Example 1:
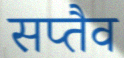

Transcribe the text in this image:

सप्तैव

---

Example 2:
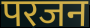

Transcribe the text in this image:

परजन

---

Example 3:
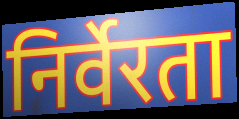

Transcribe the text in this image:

निर्वेरता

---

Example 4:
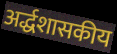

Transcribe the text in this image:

अर्द्धशासकीय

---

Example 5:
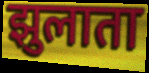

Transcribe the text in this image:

झुलाता